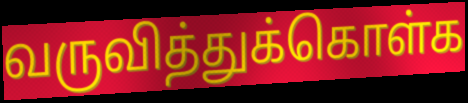
வருவித்துக்கொள்க